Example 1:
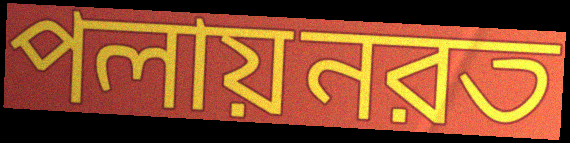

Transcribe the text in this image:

পলায়নরত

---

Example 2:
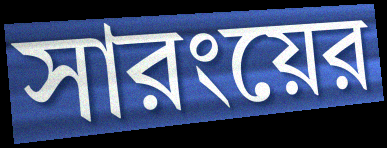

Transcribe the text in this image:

সারংয়ের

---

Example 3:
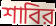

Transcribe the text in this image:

শাবির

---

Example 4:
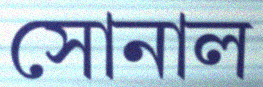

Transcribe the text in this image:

সোনাল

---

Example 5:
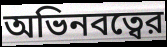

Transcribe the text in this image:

অভিনবত্বের